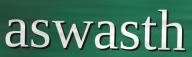
aswasth